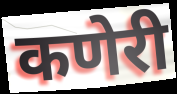
कणेरी